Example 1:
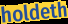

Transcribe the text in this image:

holdeth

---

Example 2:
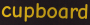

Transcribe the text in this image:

cupboard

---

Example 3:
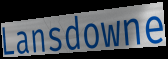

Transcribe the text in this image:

Lansdowne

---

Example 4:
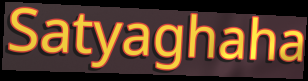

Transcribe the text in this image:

Satyaghaha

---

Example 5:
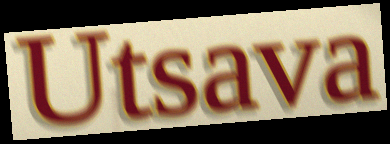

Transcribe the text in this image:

Utsava